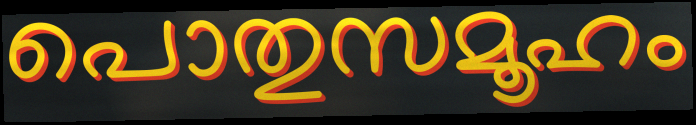
പൊതുസമൂഹം